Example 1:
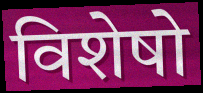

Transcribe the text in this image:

विशेषो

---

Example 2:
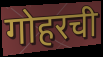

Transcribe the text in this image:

गोहरची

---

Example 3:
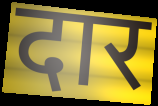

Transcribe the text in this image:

दार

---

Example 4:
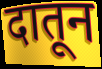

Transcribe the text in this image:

दातून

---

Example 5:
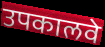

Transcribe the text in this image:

उपकालवे